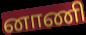
னாணி